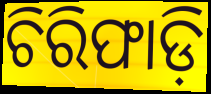
ଚିରିଫାଡ଼ି